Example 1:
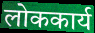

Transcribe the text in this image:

लोककार्य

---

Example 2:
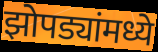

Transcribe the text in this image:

झोपड्यांमध्ये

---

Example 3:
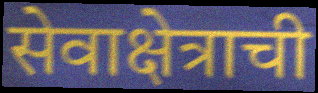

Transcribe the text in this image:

सेवाक्षेत्राची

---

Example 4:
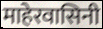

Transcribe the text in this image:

माहेरवासिनी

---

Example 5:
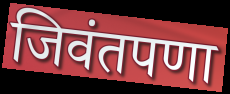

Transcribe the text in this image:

जिवंतपणा